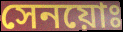
সেনয়োঃ